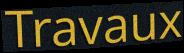
Travaux